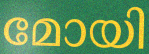
മോയി